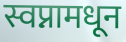
स्वप्नामधून